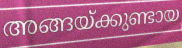
അങ്ങയ്ക്കുണ്ടായ